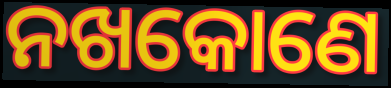
ନଖକୋଣେ